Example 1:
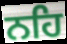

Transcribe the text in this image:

ਨਹਿ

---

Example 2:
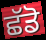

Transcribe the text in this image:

ਛੱਡੋ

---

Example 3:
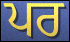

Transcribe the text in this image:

ਪਰ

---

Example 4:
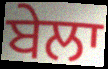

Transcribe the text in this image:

ਬੇਲਾ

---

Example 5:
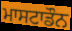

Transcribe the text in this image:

ਮਾਸਟਾਡੌਨ